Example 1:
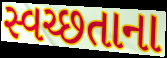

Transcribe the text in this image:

સ્વચ્છતાના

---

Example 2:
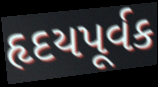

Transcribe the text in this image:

હૃદયપૂર્વક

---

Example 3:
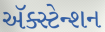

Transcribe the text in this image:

ઍક્સ્ટેન્શન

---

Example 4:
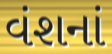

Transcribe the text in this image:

વંશનાં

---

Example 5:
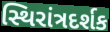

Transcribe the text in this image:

સ્થિરાંત્રદર્શક